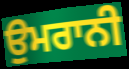
ਉਮਰਾਨੀ